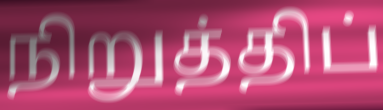
நிறுத்திப்